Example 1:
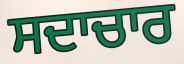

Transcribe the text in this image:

ਸਦਾਚਾਰ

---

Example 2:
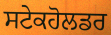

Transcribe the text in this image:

ਸਟੇਕਹੋਲਡਰ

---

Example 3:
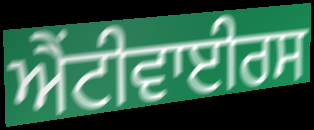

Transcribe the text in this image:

ਐਂਟੀਵਾਈਰਸ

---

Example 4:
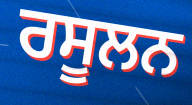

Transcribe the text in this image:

ਰਸੂਲਨ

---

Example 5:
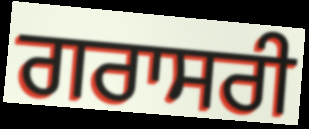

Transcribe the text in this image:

ਗਰਾਸਰੀ